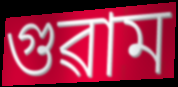
গুৱাম